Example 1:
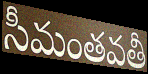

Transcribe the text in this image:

సీమంతవతీ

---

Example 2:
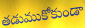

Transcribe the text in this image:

తడుముకోకుండా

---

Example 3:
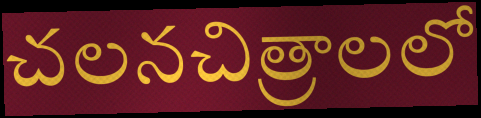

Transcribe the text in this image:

చలనచిత్రాలలో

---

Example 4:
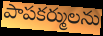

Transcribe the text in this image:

పాపకర్ములను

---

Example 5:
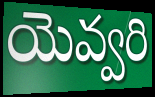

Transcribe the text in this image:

యెవ్వరి